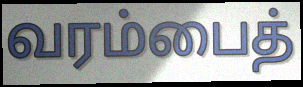
வரம்பைத்